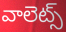
వాలెట్స్